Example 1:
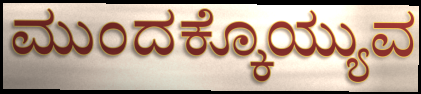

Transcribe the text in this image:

ಮುಂದಕ್ಕೊಯ್ಯುವ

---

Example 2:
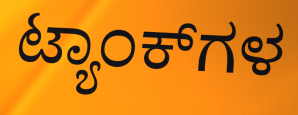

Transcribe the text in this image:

ಟ್ಯಾಂಕ್‌ಗಳ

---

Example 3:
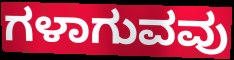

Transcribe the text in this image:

ಗಳಾಗುವವು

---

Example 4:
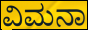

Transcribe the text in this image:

ವಿಮನಾ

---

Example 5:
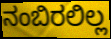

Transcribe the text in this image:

ನಂಬಿರಲಿಲ್ಲ